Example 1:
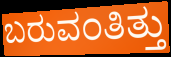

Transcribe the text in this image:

ಬರುವಂತಿತ್ತು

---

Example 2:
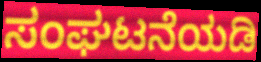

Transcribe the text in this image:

ಸಂಘಟನೆಯಡಿ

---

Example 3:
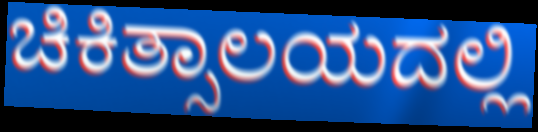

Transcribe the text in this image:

ಚಿಕಿತ್ಸಾಲಯದಲ್ಲಿ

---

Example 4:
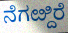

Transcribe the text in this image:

ನೆಗೞ್ದಿರೆ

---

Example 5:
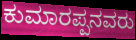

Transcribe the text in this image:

ಕುಮಾರಪ್ಪನವರು